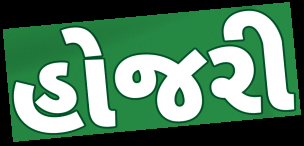
હોજરી